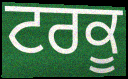
ਟਰਕੂ